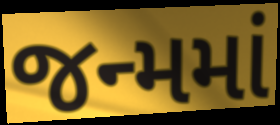
જન્મમાં